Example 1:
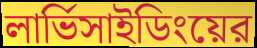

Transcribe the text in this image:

লার্ভিসাইডিংয়ের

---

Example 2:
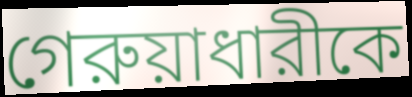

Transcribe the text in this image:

গেরুয়াধারীকে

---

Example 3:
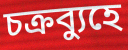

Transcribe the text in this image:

চক্রব্যুহে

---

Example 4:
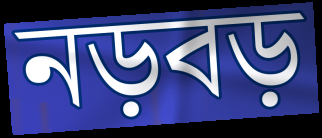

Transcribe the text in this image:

নড়বড়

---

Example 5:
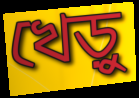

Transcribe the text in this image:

খেড়ু